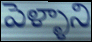
పెళ్ళాని